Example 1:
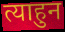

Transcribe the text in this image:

त्याहुन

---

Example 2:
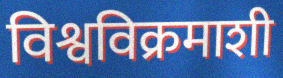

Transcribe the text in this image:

विश्वविक्रमाशी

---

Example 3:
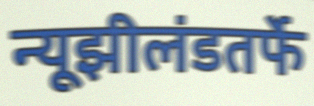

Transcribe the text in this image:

न्यूझीलंडतर्फे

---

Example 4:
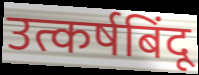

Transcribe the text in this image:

उत्कर्षबिंदू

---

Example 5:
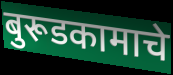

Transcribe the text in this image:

बुरूडकामाचे